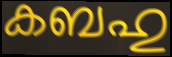
കബഹു